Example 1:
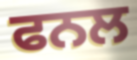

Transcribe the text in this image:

ਫਨਲ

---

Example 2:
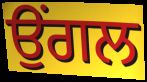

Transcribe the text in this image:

ਉੰਗਲ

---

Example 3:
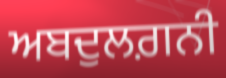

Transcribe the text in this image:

ਅਬਦੁਲਗ਼ਨੀ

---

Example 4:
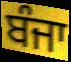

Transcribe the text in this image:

ਬੰਜਾ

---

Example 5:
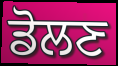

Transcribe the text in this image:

ਡੋਲਣ